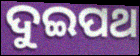
ଦୁଇପଥ